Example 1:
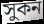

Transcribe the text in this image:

সুকন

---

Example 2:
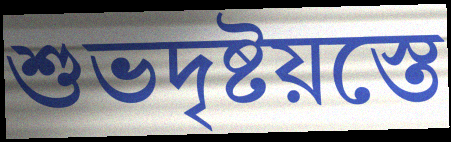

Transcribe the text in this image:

শুভদৃষ্টয়স্তে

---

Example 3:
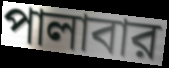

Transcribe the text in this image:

পালাবার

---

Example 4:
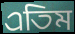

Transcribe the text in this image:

এতিম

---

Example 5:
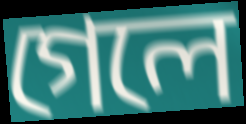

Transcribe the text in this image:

গেলে